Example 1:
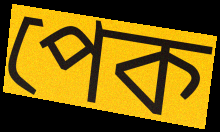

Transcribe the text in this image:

পেক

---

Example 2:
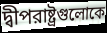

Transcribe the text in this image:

দ্বীপরাষ্ট্রগুলোকে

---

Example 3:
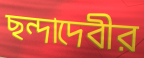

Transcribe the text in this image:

ছন্দাদেবীর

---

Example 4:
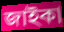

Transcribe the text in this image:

জাইকা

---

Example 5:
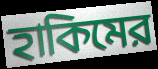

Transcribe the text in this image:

হাকিমের